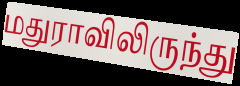
மதுராவிலிருந்து